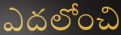
ఎదలోంచి